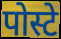
पोस्टे